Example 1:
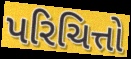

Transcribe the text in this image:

પરિચિત્તો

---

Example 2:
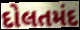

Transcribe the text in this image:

દોલતમંદ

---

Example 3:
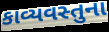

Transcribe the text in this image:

કાવ્યવસ્તુના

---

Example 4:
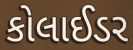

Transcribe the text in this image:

કોલાઈડર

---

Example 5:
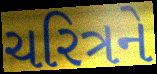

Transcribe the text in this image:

ચરિત્રને